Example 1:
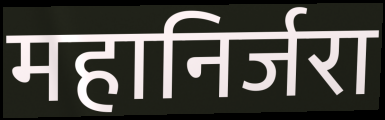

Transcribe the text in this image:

महानिर्जरा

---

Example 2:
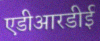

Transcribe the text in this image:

एडीआरडीई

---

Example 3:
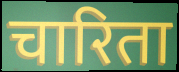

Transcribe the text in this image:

चारिता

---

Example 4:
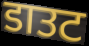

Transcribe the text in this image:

डाउट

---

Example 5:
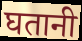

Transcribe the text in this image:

घतानी